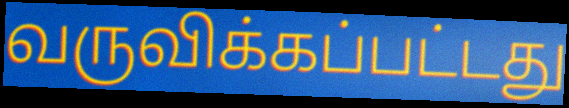
வருவிக்கப்பட்டது